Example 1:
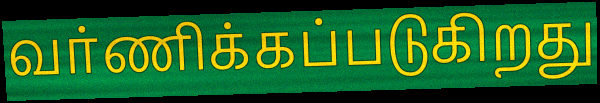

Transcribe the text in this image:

வர்ணிக்கப்படுகிறது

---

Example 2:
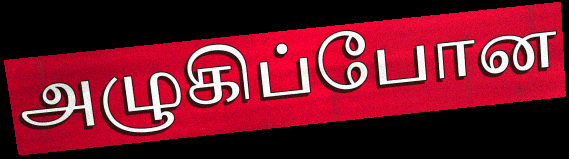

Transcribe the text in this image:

அழுகிப்போன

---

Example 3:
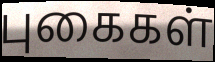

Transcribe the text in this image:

புகைகள்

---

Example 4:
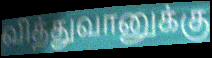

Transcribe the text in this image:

வித்துவானுக்கு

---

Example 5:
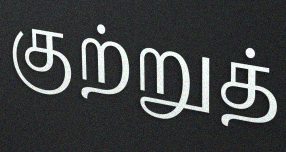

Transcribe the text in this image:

குற்றுத்